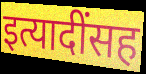
इत्यादींसह